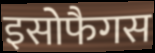
इसोफैगस